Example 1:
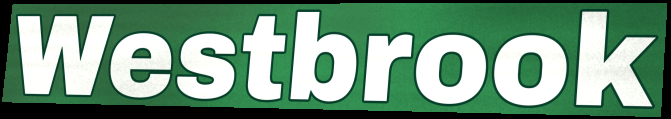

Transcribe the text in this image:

Westbrook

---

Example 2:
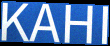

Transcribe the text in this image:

KAHI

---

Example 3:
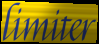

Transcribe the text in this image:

limiter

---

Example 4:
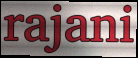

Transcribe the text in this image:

rajani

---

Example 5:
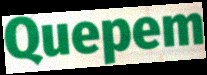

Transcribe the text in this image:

Quepem